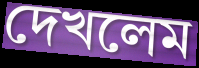
দেখলেম